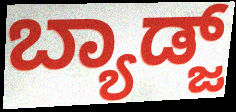
ಬ್ಯಾಡ್ಜ್